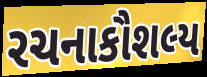
રચનાકૌશલ્ય